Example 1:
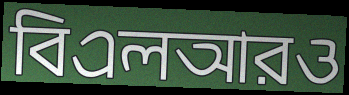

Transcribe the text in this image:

বিএলআরও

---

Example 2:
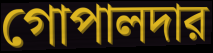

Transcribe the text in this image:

গোপালদার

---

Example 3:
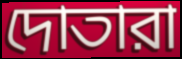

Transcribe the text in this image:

দোতারা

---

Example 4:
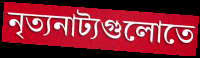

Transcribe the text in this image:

নৃত্যনাট্যগুলোতে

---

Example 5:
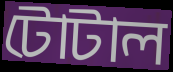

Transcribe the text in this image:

টোটাল